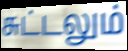
சுட்டலும்